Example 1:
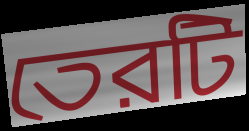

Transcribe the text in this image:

তেরটি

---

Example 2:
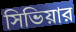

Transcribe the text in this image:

সিভিয়ার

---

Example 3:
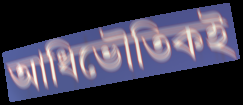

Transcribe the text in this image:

আধিভৌতিকই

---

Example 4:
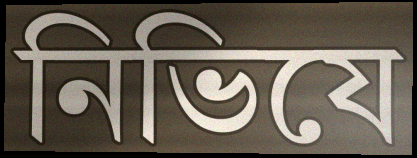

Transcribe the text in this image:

নিভিযে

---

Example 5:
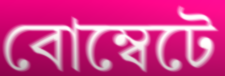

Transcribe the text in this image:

বোম্বেটে